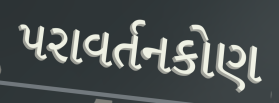
પરાવર્તનકોણ